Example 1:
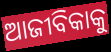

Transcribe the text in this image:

ଆଜୀବିକାକୁ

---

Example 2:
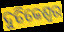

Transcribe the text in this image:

ଦୁତିକେଶ୍ୱର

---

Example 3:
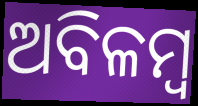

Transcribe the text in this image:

ଅବିଳମ୍ବ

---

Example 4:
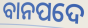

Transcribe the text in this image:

ବାନପଦେ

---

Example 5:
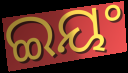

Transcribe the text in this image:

ଇୟଂ